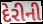
દેરીની